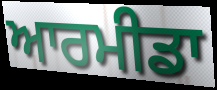
ਆਰਮੀਡਾ